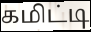
கமிட்டி